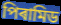
পিৰামিড